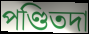
পণ্ডিতদা